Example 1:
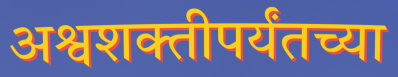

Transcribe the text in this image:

अश्वशक्तीपर्यंतच्या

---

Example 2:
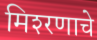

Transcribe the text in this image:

मिश्रणाचे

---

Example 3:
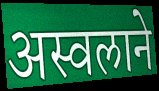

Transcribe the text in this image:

अस्वलाने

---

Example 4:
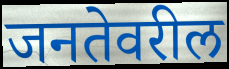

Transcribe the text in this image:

जनतेवरील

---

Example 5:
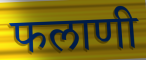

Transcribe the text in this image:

फलाणी